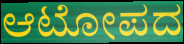
ಆಟೋಪದ